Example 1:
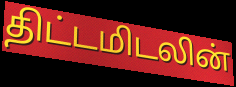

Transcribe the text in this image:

திட்டமிடலின்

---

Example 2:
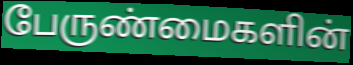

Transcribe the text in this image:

பேருண்மைகளின்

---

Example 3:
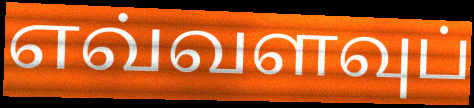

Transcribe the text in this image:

எவ்வளவுப்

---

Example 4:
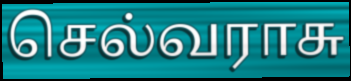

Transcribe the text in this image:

செல்வராசு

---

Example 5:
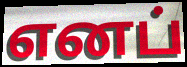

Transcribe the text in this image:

எனப்